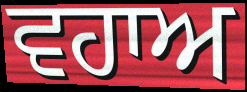
ਵਹਾਅ